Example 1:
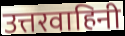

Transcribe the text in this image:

उत्तरवाहिनी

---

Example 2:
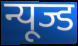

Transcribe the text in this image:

न्यूज्ड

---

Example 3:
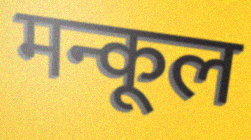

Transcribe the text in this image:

मन्कूल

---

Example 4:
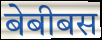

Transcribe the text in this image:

बेबीबस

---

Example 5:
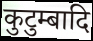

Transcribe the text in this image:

कुटुम्बादि